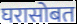
घरासोबत